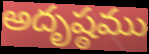
అదృష్ఠము